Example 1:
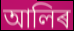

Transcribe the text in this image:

আলিৰ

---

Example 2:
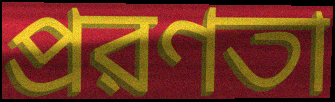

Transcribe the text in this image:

প্ৰৱণতা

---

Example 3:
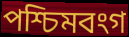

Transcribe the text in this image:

পশ্চিমবংগ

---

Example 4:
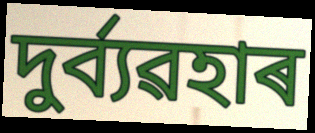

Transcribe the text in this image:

দুৰ্ব্যৱহাৰ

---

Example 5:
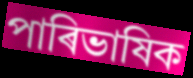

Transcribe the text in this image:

পাৰিভাষিক